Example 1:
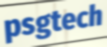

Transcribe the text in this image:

psgtech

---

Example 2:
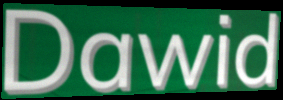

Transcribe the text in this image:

Dawid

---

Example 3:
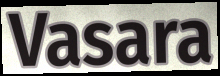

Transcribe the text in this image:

Vasara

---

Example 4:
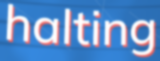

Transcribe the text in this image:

halting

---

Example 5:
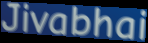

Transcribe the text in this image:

Jivabhai